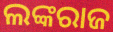
ଲଙ୍କରାଜ